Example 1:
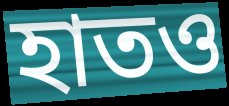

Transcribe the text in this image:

হাতও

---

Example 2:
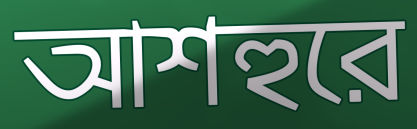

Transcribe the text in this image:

আশহুরে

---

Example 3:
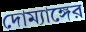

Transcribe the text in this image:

দোম্যাঙ্গের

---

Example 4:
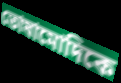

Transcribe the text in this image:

তোষামোদিকে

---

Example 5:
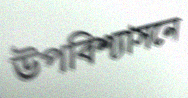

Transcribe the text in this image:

উপবিশ্যাসনে